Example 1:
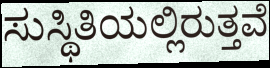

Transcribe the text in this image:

ಸುಸ್ಥಿತಿಯಲ್ಲಿರುತ್ತವೆ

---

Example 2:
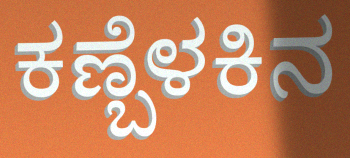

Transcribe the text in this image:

ಕಣ್ಬೆಳಕಿನ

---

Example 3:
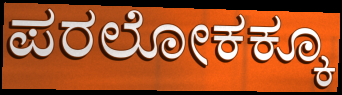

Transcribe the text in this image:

ಪರಲೋಕಕ್ಕೂ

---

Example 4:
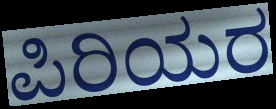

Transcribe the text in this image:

ಪಿರಿಯರ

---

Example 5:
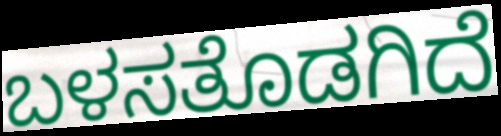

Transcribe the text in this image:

ಬಳಸತೊಡಗಿದೆ